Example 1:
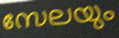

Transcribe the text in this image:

സേലയും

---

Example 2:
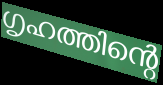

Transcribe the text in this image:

ഗൃഹത്തിന്റെ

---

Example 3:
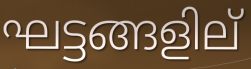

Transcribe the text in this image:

ഘട്ടങ്ങളില്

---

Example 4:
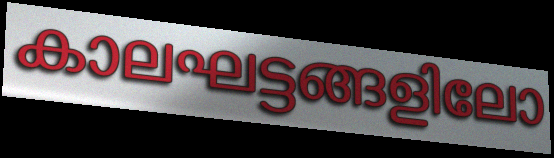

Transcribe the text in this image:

കാലഘട്ടങ്ങളിലോ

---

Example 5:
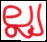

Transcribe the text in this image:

ല്ല്യ